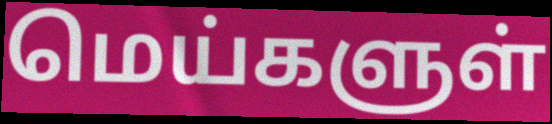
மெய்களுள்